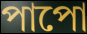
পাপো